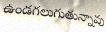
ఉండగలుగుతున్నావు